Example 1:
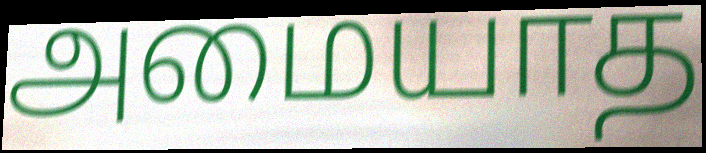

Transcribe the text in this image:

அமையாத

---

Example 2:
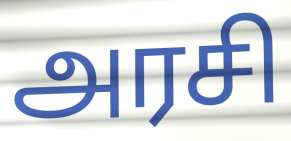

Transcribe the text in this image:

அரசி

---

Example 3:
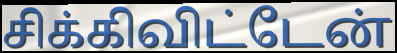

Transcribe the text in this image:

சிக்கிவிட்டேன்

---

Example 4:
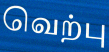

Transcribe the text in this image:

வெற்பு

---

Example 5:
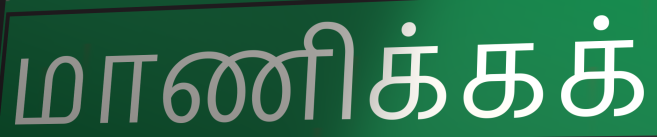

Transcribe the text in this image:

மாணிக்கக்